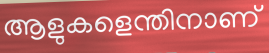
ആളുകളെന്തിനാണ്